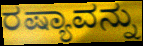
ರಷ್ಯಾವನ್ನು